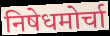
निषेधमोर्चा